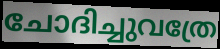
ചോദിച്ചുവത്രേ